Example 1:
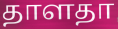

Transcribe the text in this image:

தாளதா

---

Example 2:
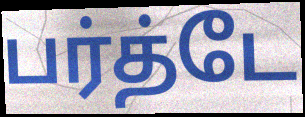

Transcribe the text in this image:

பர்த்டே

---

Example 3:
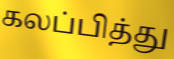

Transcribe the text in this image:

கலப்பித்து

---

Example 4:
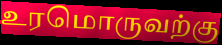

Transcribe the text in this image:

உரமொருவற்கு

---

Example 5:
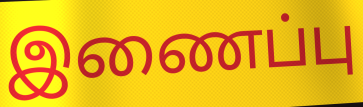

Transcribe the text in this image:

இணைப்பு